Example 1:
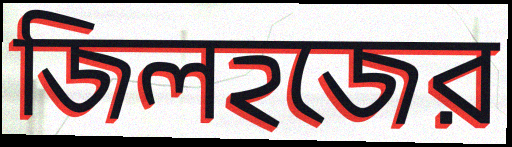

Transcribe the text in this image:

জিলহজের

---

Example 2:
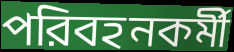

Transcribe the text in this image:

পরিবহনকর্মী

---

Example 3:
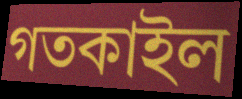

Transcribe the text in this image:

গতকাইল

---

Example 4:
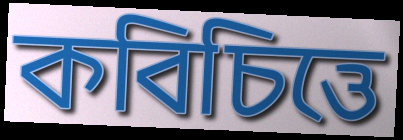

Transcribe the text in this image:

কবিচিত্তে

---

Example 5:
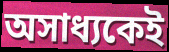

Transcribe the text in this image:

অসাধ্যকেই